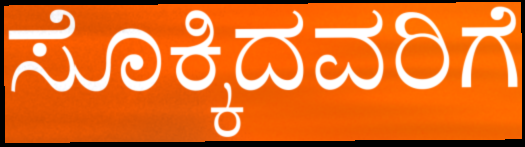
ಸೊಕ್ಕಿದವರಿಗೆ